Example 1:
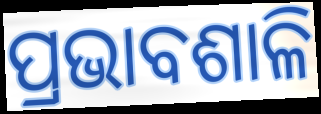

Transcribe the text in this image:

ପ୍ରଭାବଶାଳି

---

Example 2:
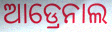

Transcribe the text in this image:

ଆଡ୍ରେନାଲ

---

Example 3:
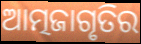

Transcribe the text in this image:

ଆତ୍ମଜାଗୃତିର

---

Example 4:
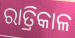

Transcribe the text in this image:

ରାତ୍ରିକାଳ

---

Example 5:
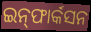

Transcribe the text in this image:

ଇନ୍‌ଫାର୍କସନ